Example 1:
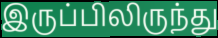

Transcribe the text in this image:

இருப்பிலிருந்து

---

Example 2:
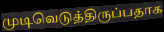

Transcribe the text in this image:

முடிவெடுத்திருப்பதாக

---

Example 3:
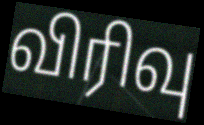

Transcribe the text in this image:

விரிவு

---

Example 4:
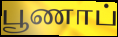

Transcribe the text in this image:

பூணாப்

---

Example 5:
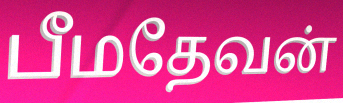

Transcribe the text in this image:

பீமதேவன்